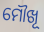
ମୌଖୂ